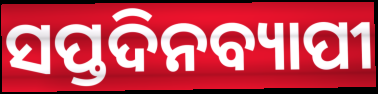
ସପ୍ତଦିନବ୍ୟାପୀ